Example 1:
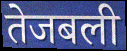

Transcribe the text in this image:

तेजबली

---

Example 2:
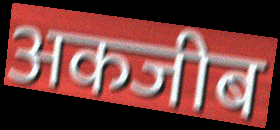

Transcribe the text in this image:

अकजीब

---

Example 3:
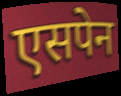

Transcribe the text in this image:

एसपेन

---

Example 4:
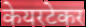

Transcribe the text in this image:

केयरटेकर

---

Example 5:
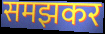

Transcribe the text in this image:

समझकर